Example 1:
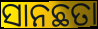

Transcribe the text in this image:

ସାନଛତା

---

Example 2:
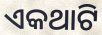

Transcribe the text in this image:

ଏକଥାଟି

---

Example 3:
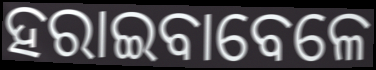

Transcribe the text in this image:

ହରାଇବାବେଳେ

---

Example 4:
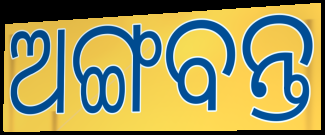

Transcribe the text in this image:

ଅଙ୍ଗବନ୍ତ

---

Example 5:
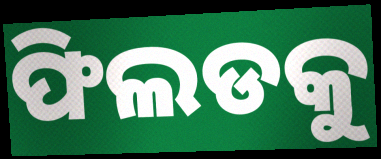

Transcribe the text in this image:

ଫିଲଡକୁ